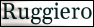
Ruggiero